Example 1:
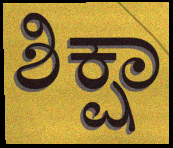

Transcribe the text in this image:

ಶಿಕ್ಷಾ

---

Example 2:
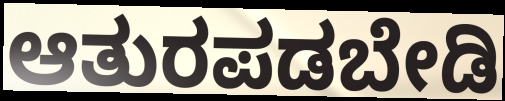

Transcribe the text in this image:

ಆತುರಪಡಬೇಡಿ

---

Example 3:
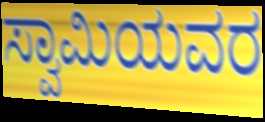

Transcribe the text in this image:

ಸ್ವಾಮಿಯವರ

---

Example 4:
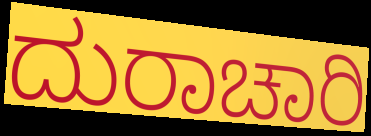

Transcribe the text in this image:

ದುರಾಚಾರಿ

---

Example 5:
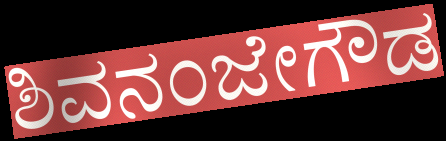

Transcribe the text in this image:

ಶಿವನಂಜೇಗೌಡ